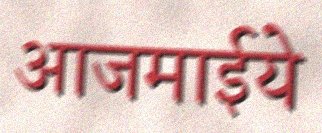
आजमाईये